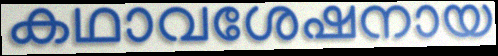
കഥാവശേഷനായ